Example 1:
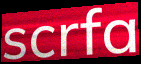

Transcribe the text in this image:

scrfa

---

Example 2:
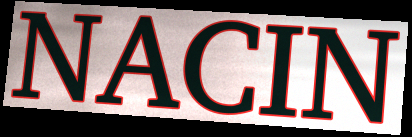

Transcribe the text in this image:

NACIN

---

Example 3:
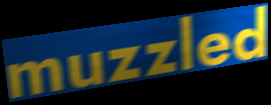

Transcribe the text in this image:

muzzled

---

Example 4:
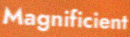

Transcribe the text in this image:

Magnificient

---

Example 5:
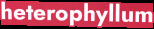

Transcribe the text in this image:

heterophyllum